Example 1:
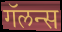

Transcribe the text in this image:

गॅलन्स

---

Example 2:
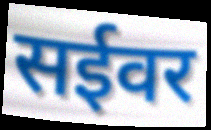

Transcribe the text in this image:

सईवर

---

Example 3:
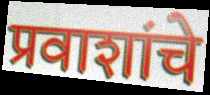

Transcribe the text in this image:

प्रवाशांचे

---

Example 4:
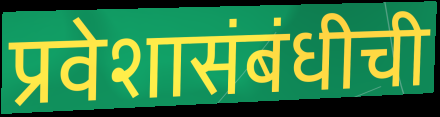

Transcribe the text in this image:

प्रवेशासंबंधीची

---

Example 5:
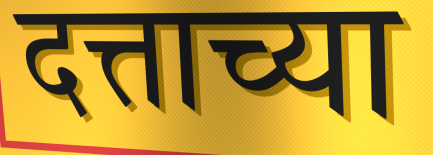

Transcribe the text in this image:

दत्ताच्या